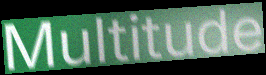
Multitude